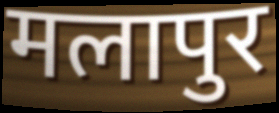
मलापुर